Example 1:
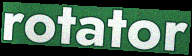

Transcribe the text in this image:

rotator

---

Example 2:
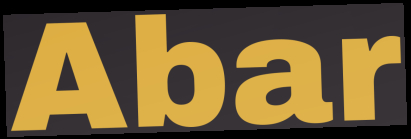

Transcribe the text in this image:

Abar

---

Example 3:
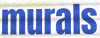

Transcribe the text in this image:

murals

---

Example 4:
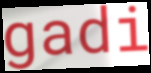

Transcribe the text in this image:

gadi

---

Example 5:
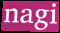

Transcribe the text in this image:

nagi